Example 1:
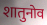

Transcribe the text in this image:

शातुनोव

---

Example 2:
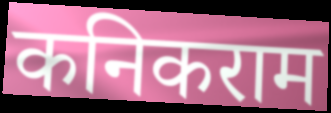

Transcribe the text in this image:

कनिकराम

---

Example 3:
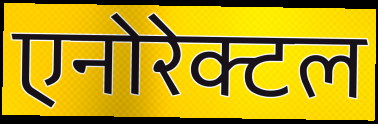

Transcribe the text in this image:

एनोरेक्टल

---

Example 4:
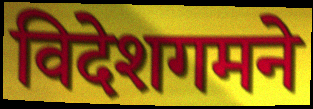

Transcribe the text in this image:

विदेशगमने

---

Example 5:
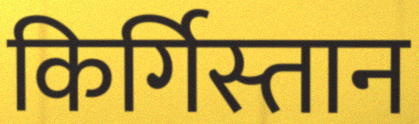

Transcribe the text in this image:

किर्गिस्‍तान